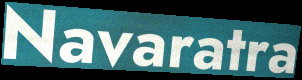
Navaratra